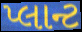
પ્લાન્ટ